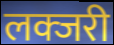
लक्‍जरी